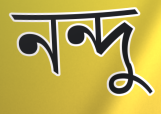
নন্দু